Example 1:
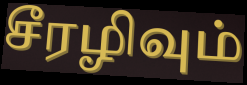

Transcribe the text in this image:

சீரழிவும்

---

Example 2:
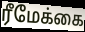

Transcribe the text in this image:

ரீமேக்கை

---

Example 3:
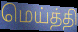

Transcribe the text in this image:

மெய்த்தி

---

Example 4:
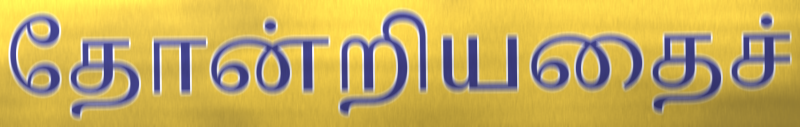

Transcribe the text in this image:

தோன்றியதைச்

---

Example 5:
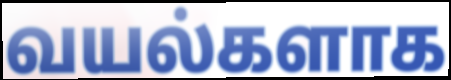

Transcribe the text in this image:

வயல்களாக